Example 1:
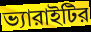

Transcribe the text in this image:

ভ্যারাইটির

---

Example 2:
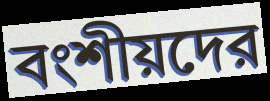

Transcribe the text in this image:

বংশীয়দের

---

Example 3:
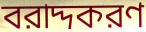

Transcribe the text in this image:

বরাদ্দকরণ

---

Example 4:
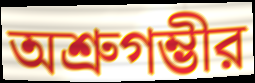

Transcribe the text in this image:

অশ্রুগম্ভীর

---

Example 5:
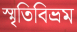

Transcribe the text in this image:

স্মৃতিবিভ্রম